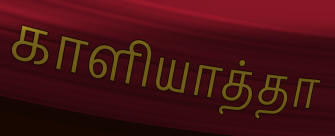
காளியாத்தா